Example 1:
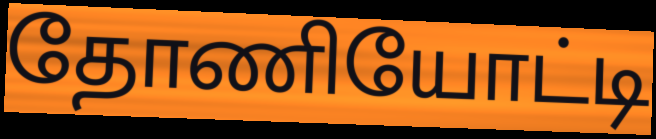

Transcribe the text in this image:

தோணியோட்டி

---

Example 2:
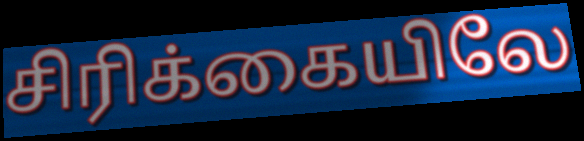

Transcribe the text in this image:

சிரிக்கையிலே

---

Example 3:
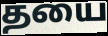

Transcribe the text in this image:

தயை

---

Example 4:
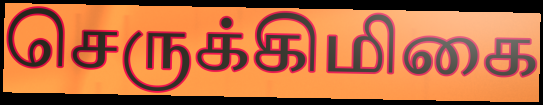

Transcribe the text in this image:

செருக்கிமிகை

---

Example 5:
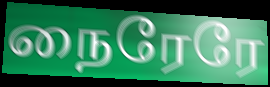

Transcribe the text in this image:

நைரேரே